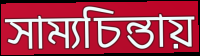
সাম্যচিন্তায়